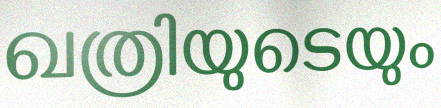
ഖത്രിയുടെയും